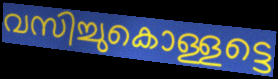
വസിച്ചുകൊള്ളട്ടെ